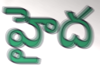
హైద